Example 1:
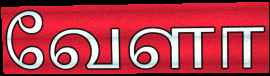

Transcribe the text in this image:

வேளா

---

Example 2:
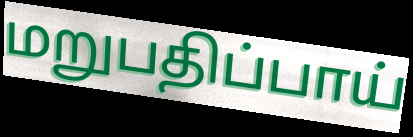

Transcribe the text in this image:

மறுபதிப்பாய்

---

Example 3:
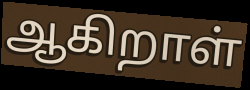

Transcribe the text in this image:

ஆகிறாள்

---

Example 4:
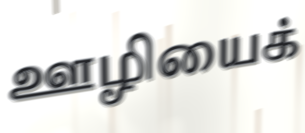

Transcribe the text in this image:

ஊழியைக்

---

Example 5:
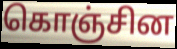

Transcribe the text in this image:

கொஞ்சின